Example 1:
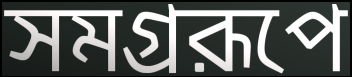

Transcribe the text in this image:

সমগ্ররূপে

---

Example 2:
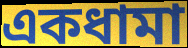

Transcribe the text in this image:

একধামা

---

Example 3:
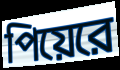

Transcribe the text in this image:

পিয়েরে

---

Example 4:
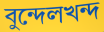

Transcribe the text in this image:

বুন্দেলখন্দ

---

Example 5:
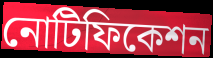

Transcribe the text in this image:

নোটিফিকেশন